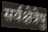
सर्वक्षेत्रेषु